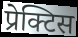
प्रेक्टिस